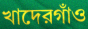
খাদেরগাঁও